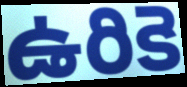
ఉరికె